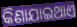
କିଣାଯାଇଥାଏ